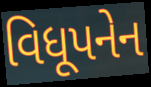
વિધૂપનેન